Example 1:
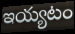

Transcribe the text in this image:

ఇయ్యటం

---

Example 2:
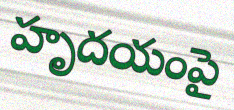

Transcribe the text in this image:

హృదయంపై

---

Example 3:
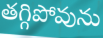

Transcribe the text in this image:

తగ్గిపోవును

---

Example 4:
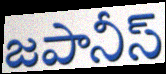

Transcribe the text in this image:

జపానీస్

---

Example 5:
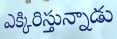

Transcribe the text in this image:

ఎక్కిరిస్తున్నాడు